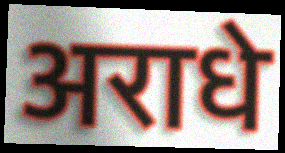
अराधे